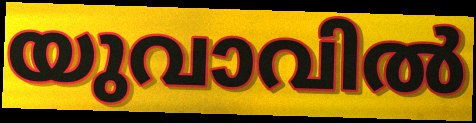
യുവാവിൽ